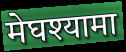
मेघश्यामा